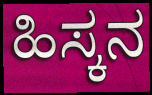
ಹಿಸ್ಕನ